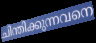
ചിന്തിക്കുന്നവനെ